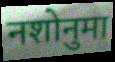
नशोनुमा